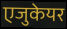
एजुकेयर